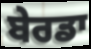
ਬੇਰਡਾ